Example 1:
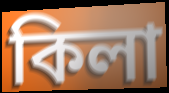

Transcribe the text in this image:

কিলা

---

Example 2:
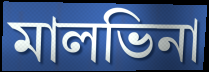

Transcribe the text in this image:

মালভিনা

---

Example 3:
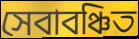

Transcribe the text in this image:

সেবাবঞ্চিত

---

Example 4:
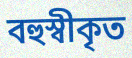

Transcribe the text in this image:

বহুস্বীকৃত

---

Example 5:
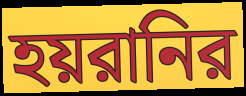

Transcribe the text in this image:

হয়রানির